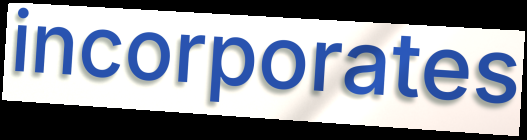
incorporates